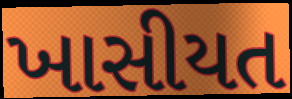
ખાસીયત